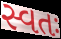
સ્વતઃ